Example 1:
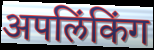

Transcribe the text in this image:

अपलिंकिंग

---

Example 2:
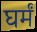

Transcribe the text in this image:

घर्मं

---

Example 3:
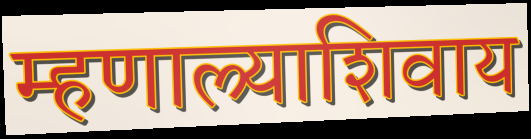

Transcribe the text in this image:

म्हणाल्याशिवाय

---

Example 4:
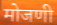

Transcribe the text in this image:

मोजणी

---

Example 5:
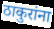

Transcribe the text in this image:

ठाकुरांना